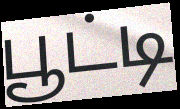
பூட்டி